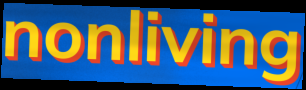
nonliving